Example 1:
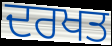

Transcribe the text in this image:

ਦਰਖਤ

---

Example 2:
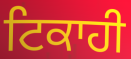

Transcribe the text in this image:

ਟਿਕਾਹੀ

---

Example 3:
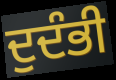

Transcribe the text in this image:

ਦੁਦੰਭੀ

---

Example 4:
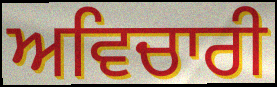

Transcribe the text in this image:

ਅਵਿਚਾਰੀ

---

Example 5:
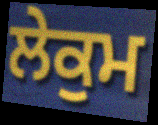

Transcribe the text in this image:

ਲੇਕੁਮ